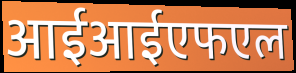
आईआईएफएल